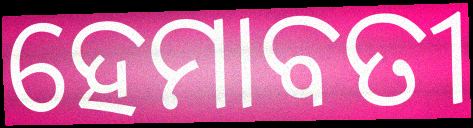
ହେମାବତୀ